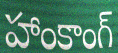
హాంకాంగ్